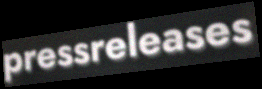
pressreleases